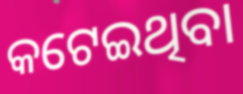
କଟେଇଥିବା